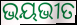
ଭୟଭୀତ